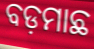
ବଡ଼ମାଛ